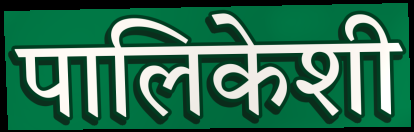
पालिकेशी